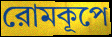
রোমকূপে